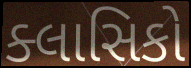
ક્લાસિકો